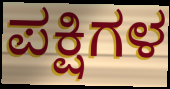
ಪಕ್ಷಿಗಳ